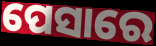
ପେସାରେ